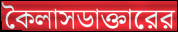
কৈলাসডাক্তারের